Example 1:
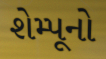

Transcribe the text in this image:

શેમ્પૂનો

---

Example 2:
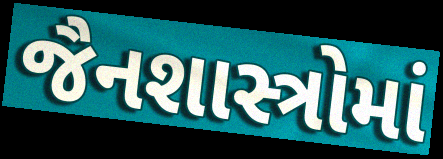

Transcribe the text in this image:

જૈનશાસ્ત્રોમાં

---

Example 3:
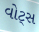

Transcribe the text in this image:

વોટ્સ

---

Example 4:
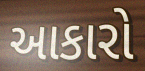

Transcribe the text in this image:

આકારો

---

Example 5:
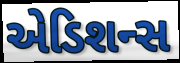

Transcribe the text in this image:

એડિશન્સ